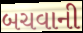
બચવાની